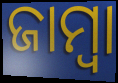
ଜାମ୍ବା